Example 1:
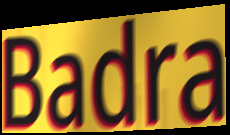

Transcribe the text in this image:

Badra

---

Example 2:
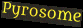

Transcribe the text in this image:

Pyrosome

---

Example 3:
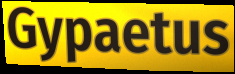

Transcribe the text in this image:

Gypaetus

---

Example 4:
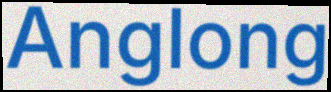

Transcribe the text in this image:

Anglong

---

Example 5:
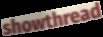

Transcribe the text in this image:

showthread